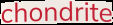
chondrite